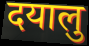
दयालु